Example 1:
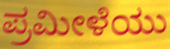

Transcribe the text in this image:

ಪ್ರಮೀಳೆಯು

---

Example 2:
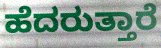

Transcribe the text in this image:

ಹೆದರುತ್ತಾರೆ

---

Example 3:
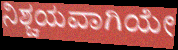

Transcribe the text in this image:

ನಿಶ್ಚಯವಾಗಿಯೇ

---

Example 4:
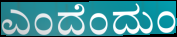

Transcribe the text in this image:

ಎಂದೆಂದುಂ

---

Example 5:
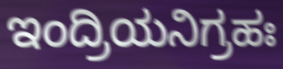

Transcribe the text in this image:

ಇಂದ್ರಿಯನಿಗ್ರಹಃ